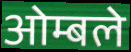
ओम्बले